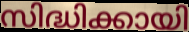
സിദ്ധിക്കായി